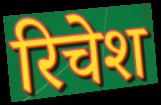
रिचेश